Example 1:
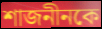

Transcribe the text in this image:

শাজনীনকে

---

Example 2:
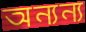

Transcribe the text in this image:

অন্যন্য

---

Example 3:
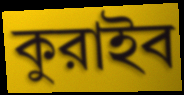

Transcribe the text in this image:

কুরাইব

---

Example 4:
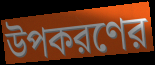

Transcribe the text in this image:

উপকরণের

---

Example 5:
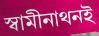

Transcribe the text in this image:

স্বামীনাথনই